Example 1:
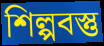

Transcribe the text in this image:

শিল্পবস্তু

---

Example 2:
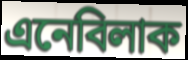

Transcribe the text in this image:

এনেবিলাক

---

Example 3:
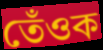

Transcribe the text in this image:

তেঁওক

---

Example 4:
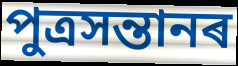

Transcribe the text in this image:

পুত্ৰসন্তানৰ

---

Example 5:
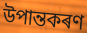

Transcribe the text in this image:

উপান্তকৰণ